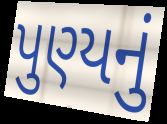
પુણ્યનું